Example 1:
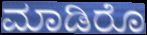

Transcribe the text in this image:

ಮಾಡಿರೊ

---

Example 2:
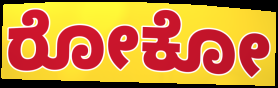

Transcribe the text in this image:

ರೋಕೋ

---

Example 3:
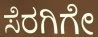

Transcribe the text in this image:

ಸೆರಗಿಗೇ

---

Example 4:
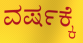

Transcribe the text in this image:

ವರ್ಷಕ್ಕೆ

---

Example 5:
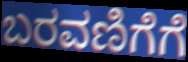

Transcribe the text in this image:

ಬರವಣಿಗೆಗೆ